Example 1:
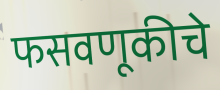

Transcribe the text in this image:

फसवणूकीचे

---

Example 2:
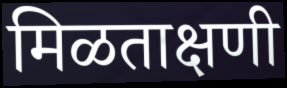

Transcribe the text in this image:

मिळताक्षणी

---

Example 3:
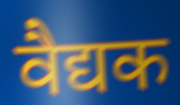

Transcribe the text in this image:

वैद्यक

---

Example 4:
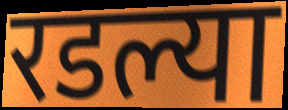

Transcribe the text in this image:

रडल्या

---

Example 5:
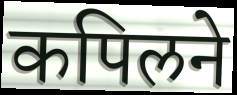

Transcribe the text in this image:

कपिलने